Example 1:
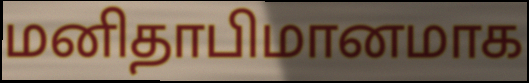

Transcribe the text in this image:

மனிதாபிமானமாக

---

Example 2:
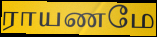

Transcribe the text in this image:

ராயணமே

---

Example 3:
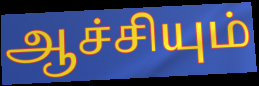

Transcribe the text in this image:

ஆச்சியும்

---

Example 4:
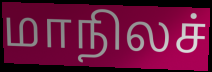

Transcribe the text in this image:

மாநிலச்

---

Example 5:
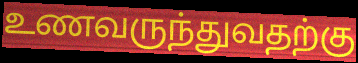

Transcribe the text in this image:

உணவருந்துவதற்கு